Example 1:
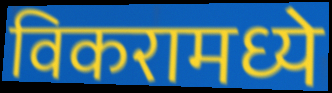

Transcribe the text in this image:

विकरामध्ये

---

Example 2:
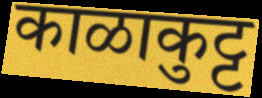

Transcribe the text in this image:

काळाकुट्ट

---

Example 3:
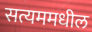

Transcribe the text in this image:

सत्यममधील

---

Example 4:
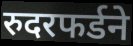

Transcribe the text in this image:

रुदरफर्डने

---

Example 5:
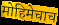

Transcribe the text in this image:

मोहिमेचाच